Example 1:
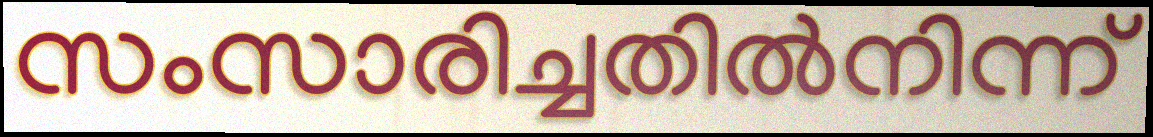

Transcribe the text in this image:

സംസാരിച്ചതിൽനിന്ന്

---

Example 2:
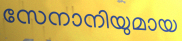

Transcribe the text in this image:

സേനാനിയുമായ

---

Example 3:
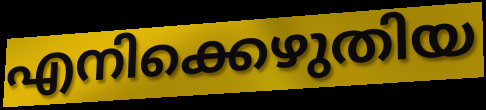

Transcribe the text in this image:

എനിക്കെഴുതിയ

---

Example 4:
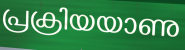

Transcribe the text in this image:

പ്രക്രിയയാണു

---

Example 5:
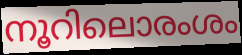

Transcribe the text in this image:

നൂറിലൊരംശം